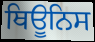
ਥਿਊਨਿਸ